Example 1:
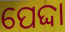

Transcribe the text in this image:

ପେଦ୍ଦା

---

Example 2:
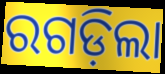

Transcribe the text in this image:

ରଗଡ଼ିଲା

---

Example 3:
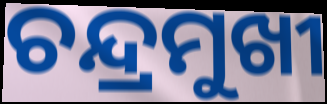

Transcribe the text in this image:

ଚନ୍ଦ୍ରମୁଖୀ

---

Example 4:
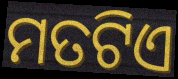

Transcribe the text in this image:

ମତଟିଏ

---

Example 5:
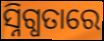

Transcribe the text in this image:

ସ୍ନିଗ୍ଧତାରେ